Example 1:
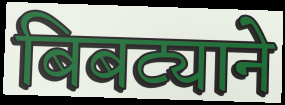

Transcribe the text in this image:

बिबट्याने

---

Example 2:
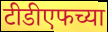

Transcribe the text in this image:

टीडीएफच्या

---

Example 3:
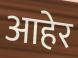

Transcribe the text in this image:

आहेर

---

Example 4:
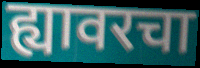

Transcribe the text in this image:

ह्यावरचा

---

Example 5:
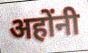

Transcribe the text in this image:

अहोंनी